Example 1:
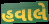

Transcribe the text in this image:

હવાલે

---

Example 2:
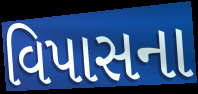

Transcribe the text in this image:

વિપાસના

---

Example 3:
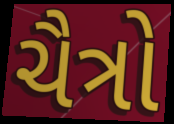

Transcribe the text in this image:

ચૈત્રો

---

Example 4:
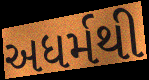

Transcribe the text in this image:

અધર્મથી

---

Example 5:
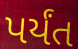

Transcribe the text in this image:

પર્યંત